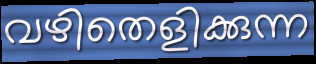
വഴിതെളിക്കുന്ന